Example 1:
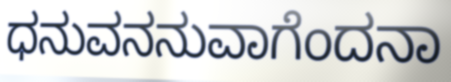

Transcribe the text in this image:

ಧನುವನನುವಾಗೆಂದನಾ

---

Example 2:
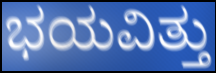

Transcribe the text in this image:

ಭಯವಿತ್ತು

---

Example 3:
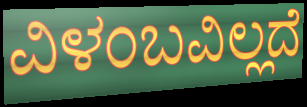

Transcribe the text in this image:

ವಿಳಂಬವಿಲ್ಲದೆ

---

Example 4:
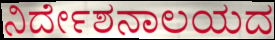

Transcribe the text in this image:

ನಿರ್ದೇಶನಾಲಯದ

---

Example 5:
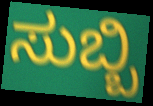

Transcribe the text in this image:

ಸುಬ್ಬಿ